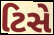
ટિસે